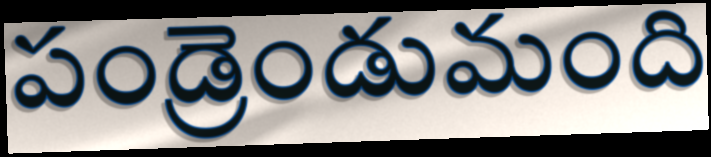
పండ్రెండుమంది